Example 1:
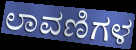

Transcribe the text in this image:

ಲಾವಣಿಗಳ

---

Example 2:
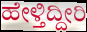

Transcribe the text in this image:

ಹೇಳ್ತಿದ್ದೀರಿ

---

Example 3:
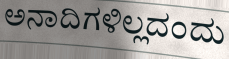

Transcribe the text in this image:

ಅನಾದಿಗಳಿಲ್ಲದಂದು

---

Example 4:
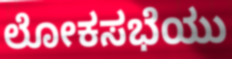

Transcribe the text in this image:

ಲೋಕಸಭೆಯು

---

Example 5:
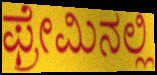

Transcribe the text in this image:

ಫ್ರೇಮಿನಲ್ಲಿ